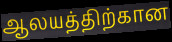
ஆலயத்திற்கான